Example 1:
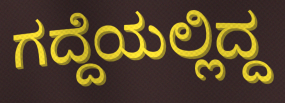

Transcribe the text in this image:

ಗದ್ದೆಯಲ್ಲಿದ್ದ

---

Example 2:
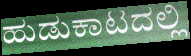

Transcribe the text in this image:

ಹುಡುಕಾಟದಲ್ಲಿ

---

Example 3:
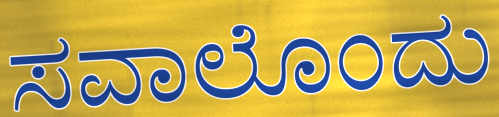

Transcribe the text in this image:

ಸವಾಲೊಂದು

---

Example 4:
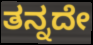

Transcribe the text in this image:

ತನ್ನದೇ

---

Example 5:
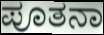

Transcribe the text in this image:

ಪೂತನಾ